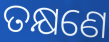
ତକ୍ଷଣେ